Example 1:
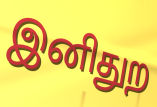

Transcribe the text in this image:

இனிதுற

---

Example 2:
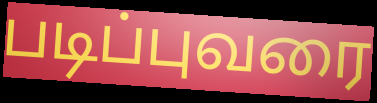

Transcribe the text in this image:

படிப்புவரை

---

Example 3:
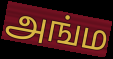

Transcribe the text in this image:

அங்ம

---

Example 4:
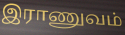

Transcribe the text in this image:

இராணுவம்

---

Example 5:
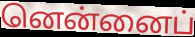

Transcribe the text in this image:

னென்னைப்